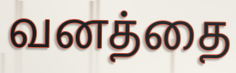
வனத்தை